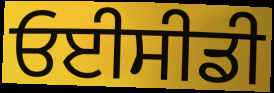
ਓਈਸੀਡੀ